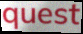
quest